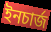
ইনচার্জ